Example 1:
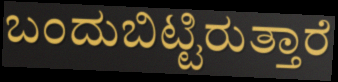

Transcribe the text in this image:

ಬಂದುಬಿಟ್ಟಿರುತ್ತಾರೆ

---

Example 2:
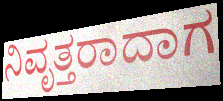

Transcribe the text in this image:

ನಿವೃತ್ತರಾದಾಗ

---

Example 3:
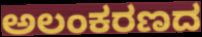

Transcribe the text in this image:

ಅಲಂಕರಣದ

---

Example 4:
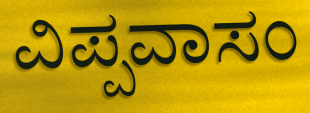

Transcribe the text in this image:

ವಿಪ್ಪವಾಸಂ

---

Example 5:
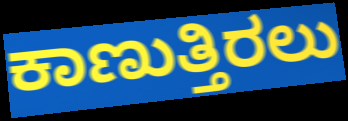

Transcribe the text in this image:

ಕಾಣುತ್ತಿರಲು